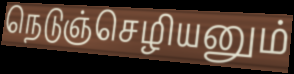
நெடுஞ்செழியனும்